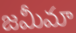
జమీమా